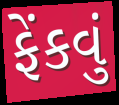
ફેંકવું